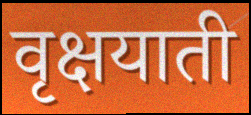
वृक्षयाती